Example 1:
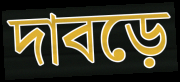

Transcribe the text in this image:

দাবড়ে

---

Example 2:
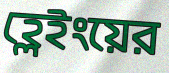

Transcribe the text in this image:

হ্লেইংয়ের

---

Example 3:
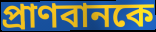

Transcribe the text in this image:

প্রাণবানকে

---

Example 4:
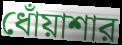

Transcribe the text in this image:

ধোঁয়াশার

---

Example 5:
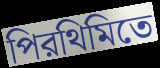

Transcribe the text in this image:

পিরথিমিতে